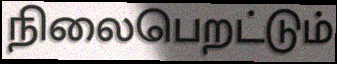
நிலைபெறட்டும்